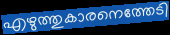
എഴുത്തുകാരനെത്തേടി